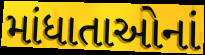
માંધાતાઓનાં